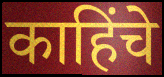
काहिंचे